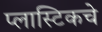
प्लास्टिकचे